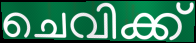
ചെവിക്ക്